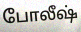
போலீஷ்